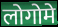
लोगोमे